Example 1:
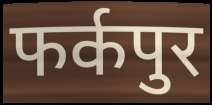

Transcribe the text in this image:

फर्कपुर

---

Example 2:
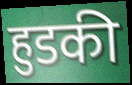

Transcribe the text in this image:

हुडकी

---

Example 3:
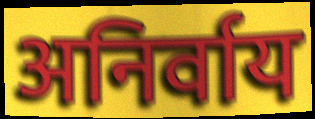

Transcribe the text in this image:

अनिर्वाय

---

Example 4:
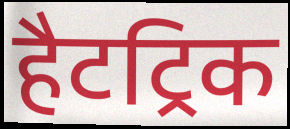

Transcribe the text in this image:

हैटट्रिक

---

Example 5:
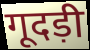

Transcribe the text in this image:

गूदड़ी